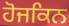
ਹੋਜਕਿਨ